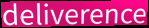
deliverence